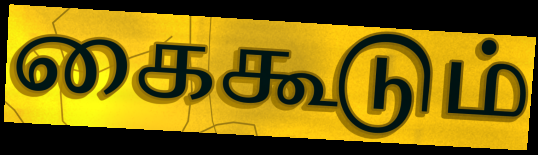
கைகூடும்